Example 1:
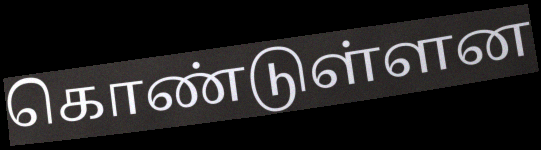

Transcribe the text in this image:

கொண்டுள்ளன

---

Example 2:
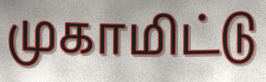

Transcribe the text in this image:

முகாமிட்டு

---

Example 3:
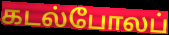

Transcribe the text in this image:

கடல்போலப்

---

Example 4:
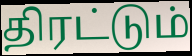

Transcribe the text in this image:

திரட்டும்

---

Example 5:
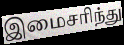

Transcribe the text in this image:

இமைசரிந்து